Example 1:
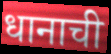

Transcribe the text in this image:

धानाची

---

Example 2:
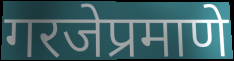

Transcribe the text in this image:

गरजेप्रमाणे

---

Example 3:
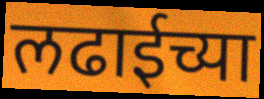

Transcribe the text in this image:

लढाईच्या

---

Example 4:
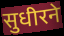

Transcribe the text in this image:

सुधीरने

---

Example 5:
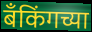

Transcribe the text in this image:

बँकिंगच्या